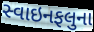
સ્વાઇનફલુના